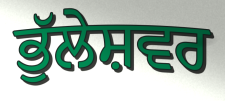
ਭੁੱਲੇਸ਼ਵਰ